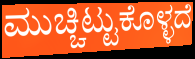
ಮುಚ್ಚಿಟ್ಟುಕೊಳ್ಳದೆ